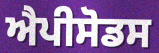
ਐਪੀਸੋਡਸ